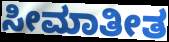
ಸೀಮಾತೀತ